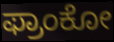
ಫ್ರಾಂಕೋ